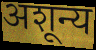
अशून्य